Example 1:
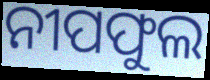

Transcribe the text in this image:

ନୀପଫୁଲ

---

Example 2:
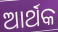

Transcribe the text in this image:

ଆର୍ଥକ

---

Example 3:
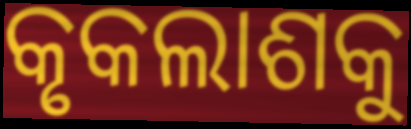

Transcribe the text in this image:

କୃକଲାଶକୁ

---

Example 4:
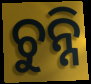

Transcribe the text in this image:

ଚୁନ୍ନି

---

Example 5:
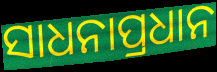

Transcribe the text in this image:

ସାଧନାପ୍ରଧାନ